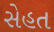
સેહત